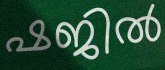
ഷജിൽ